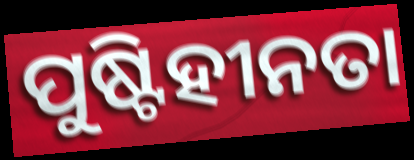
ପୁଷ୍ଟିହୀନତା